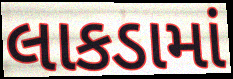
લાકડામાં